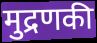
मुद्रणकी